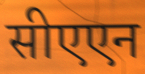
सीएएन